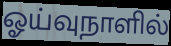
ஓய்வுநாளில்